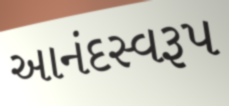
આનંદસ્વરૂપ